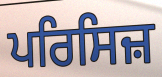
ਪਰਿਸਿਜ਼